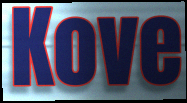
Kove